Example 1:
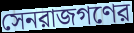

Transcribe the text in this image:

সেনরাজগণের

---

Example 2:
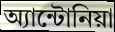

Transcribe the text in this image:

অ্যান্টোনিয়া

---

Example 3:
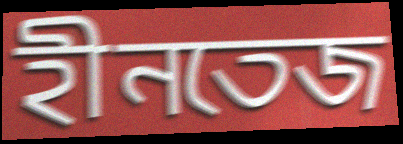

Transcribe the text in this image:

হীনতেজ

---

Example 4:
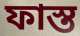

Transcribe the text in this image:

ফাস্ত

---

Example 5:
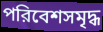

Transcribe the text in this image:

পরিবেশসমৃদ্ধ